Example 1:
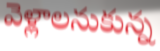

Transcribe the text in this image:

వెళ్లాలనుకున్న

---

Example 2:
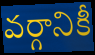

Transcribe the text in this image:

వర్గానికీ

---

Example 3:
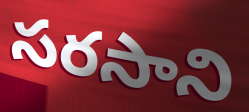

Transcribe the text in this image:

సరసాని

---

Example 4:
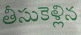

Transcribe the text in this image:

తీసుకెళ్లిన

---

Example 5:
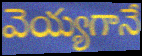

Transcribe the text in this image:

వెయ్యగానే